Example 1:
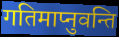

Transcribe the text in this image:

गतिमाप्नुवन्ति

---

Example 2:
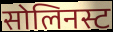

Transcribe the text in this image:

सोलिनस्ट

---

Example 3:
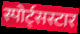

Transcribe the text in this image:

स्पोर्ट्सस्टार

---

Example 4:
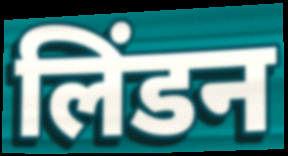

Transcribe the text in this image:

लिंडन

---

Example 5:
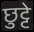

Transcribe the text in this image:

छुट्टे